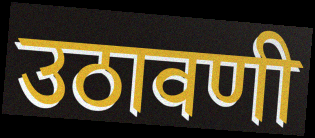
उठावणी